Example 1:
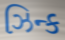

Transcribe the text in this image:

ઝિન્ક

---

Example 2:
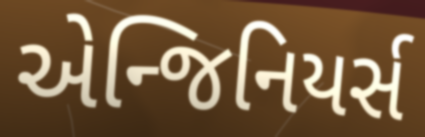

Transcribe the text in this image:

એન્જિનિયર્સ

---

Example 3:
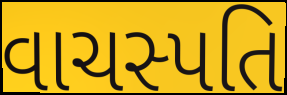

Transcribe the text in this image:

વાચસ્પતિ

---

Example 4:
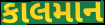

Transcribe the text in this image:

કાલમાન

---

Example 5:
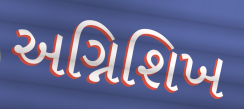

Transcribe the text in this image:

અગ્નિશિખ